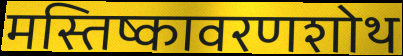
मस्तिष्कावरणशोथ